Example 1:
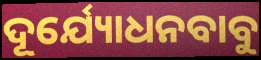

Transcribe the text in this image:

ଦୂର୍ଯ୍ୟୋଧନବାବୁ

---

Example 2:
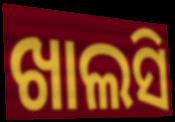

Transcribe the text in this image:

ଖାଲସି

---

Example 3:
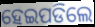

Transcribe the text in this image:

ହେଇପଡିଲେ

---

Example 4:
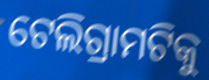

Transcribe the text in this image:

ଟେଲିଗ୍ରାମଟିକୁ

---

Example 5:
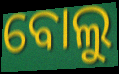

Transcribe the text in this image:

ବୋଲୁ